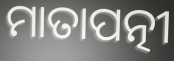
ମାତାପତ୍ନୀ